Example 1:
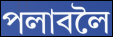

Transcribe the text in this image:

পলাবলৈ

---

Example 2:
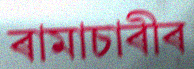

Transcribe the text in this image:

ৰামাচাৰীৰ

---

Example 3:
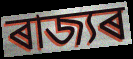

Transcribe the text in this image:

ৰাজ্যৰ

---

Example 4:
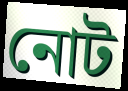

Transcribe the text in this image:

নোট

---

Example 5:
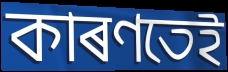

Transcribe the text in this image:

কাৰণতেই